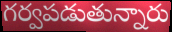
గర్వపడుతున్నారు